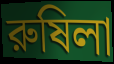
রুষিলা